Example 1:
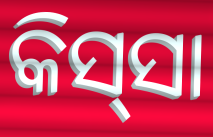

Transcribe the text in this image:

କିସ୍‍ସା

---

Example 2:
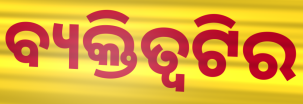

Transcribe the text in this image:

ବ୍ୟକ୍ତିତ୍ୱଟିର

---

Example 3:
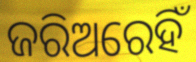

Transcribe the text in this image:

ଜରିଅରେହିଁ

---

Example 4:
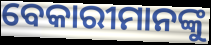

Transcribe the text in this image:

ବେକାରୀମାନଙ୍କୁ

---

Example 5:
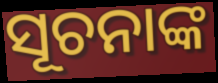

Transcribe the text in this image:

ସୂଚନାଙ୍କ